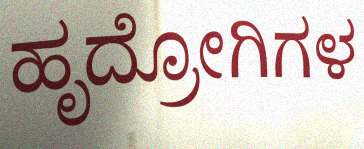
ಹೃದ್ರೋಗಿಗಳ